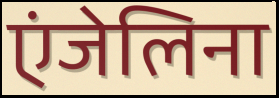
एंजेलिना